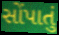
સોંપાતું